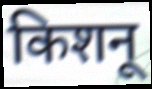
किशनू